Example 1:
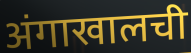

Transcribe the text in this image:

अंगाखालची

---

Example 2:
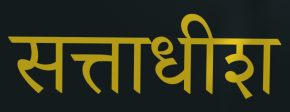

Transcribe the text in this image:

सत्ताधीश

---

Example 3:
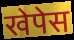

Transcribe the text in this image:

खेपेस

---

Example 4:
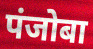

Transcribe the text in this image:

पंजोबा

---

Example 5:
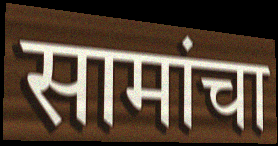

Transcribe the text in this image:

सामांचा